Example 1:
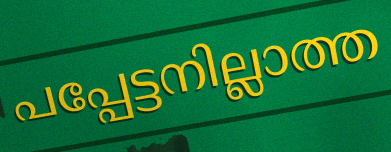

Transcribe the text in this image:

പപ്പേട്ടനില്ലാത്ത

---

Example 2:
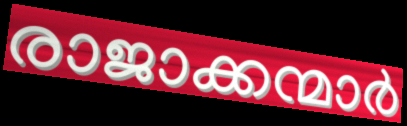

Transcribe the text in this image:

രാജാക്കന്മാർ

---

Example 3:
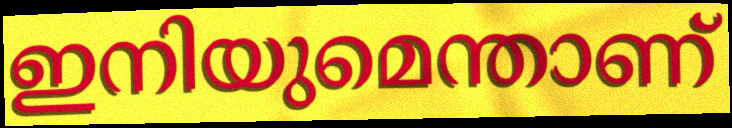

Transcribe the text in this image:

ഇനിയുമെന്താണ്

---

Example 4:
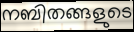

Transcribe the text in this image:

നബിതങ്ങളുടെ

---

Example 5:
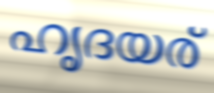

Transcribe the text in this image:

ഹൃദയര്